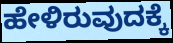
ಹೇಳಿರುವುದಕ್ಕೆ